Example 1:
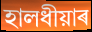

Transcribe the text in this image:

হালধীয়াৰ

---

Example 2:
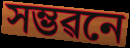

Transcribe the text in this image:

সম্ভৱনে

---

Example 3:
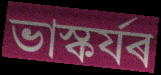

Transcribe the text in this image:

ভাস্কৰ্যৰ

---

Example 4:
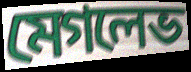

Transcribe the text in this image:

মেগলেভ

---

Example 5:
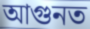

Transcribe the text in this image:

আগুনত